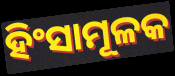
ହିଂସାମୂଳକ